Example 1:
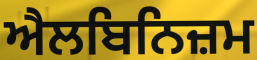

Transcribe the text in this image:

ਐਲਬਿਨਿਜ਼ਮ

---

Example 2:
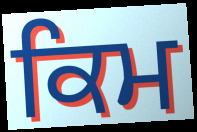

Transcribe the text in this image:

ਕਿਮ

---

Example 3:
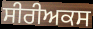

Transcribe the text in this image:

ਸੀਰੀਅਕਸ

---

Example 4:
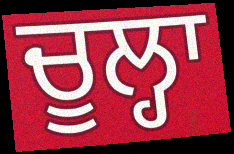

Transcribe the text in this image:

ਚੂਲ੍ਹਾ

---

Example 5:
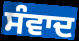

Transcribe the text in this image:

ਸੰਵਾਦ